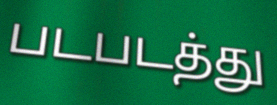
படபடத்து